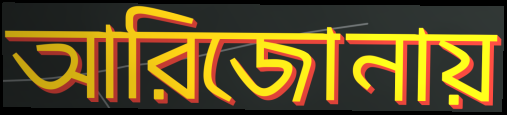
আরিজোনায়